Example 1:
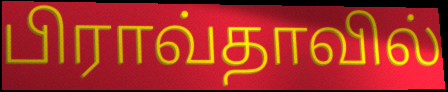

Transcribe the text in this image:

பிராவ்தாவில்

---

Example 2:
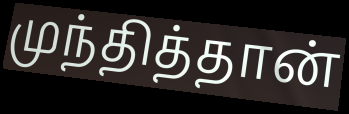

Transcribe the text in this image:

முந்தித்தான்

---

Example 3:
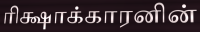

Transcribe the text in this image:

ரிக்ஷாக்காரனின்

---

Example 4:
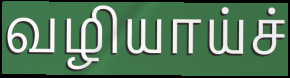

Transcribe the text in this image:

வழியாய்ச்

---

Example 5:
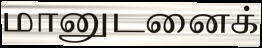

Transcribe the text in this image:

மானுடனைக்